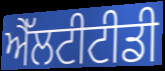
ਐੱਲਟੀਟੀਡੀ